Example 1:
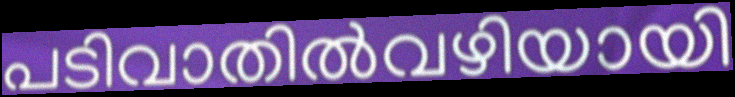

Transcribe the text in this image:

പടിവാതിൽവഴിയായി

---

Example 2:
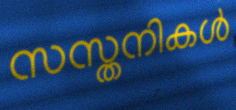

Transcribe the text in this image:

സസ്തനികൾ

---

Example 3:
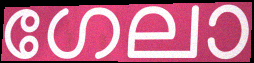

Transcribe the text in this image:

ഗേലാ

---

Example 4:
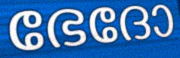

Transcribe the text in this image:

ഭേദോ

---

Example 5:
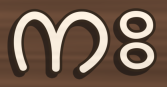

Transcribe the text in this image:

നഃ